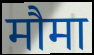
मौमा